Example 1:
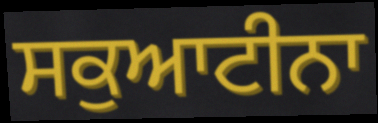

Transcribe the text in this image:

ਸਕੁਆਟੀਨਾ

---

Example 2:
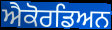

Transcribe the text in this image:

ਐਕੋਰਡਿਅਨ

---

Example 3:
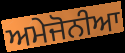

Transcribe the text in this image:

ਅਮੇਜੋਨੀਆ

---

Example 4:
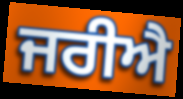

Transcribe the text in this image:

ਜਰੀਐ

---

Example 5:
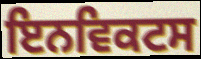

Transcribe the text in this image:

ਇਨਵਿਕਟਸ